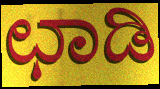
ಛಾಡಿ